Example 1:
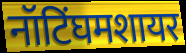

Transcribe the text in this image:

नॉटिंघमशायर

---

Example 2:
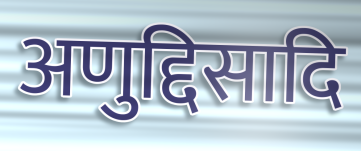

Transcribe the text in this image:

अणुद्दिसादि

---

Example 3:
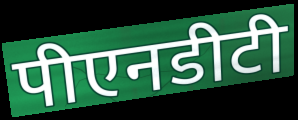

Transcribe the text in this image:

पीएनडीटी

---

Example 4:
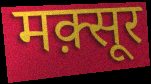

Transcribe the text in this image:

मक़्सूर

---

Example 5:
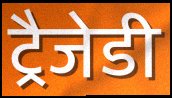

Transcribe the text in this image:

ट्रैजेडी